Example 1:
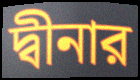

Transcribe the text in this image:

দ্বীনার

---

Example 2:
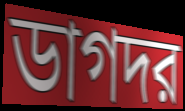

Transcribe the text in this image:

ডাগদর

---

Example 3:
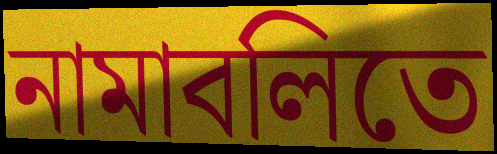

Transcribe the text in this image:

নামাবলিতে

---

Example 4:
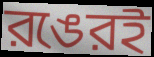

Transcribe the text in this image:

রঙেরই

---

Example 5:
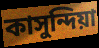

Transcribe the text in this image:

কাসুন্দিয়া